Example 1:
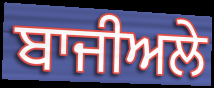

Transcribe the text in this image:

ਬਾਜੀਅਲੇ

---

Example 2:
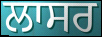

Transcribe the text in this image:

ਲਾਸਰ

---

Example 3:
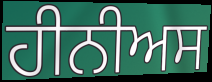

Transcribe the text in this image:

ਹੀਨੀਅਸ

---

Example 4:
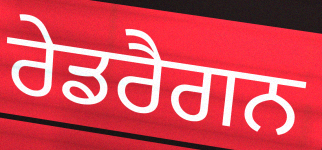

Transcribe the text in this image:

ਰੇਡਰੈਗਨ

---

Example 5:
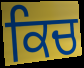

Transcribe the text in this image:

ਕਿਚ